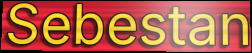
Sebestan